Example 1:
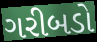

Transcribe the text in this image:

ગરીબડો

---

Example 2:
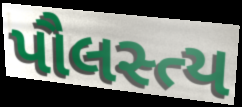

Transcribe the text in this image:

પૌલસ્ત્ય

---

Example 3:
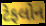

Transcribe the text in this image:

ટેફલોન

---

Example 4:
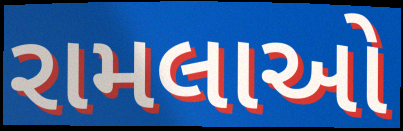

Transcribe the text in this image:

રામલાઓ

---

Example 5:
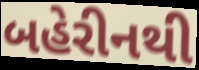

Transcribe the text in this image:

બહેરીનથી